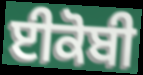
ਈਕੋਬੀ